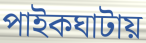
পাইকঘাটায়